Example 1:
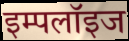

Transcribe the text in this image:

इम्पलॉइज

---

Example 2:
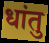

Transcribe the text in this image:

धांतु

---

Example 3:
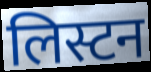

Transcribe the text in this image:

लिस्टन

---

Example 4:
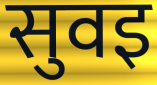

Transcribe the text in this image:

सुवइ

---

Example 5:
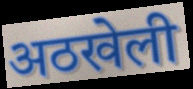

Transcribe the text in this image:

अठखेली